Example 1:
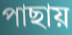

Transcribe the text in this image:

পাছায়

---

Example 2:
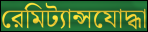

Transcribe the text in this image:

রেমিট্যান্সযোদ্ধা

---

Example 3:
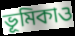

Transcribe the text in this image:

ভূমিকাও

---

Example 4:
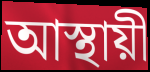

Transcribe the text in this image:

আস্থায়ী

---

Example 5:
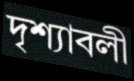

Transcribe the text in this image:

দৃশ্যাবলী